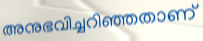
അനുഭവിച്ചറിഞ്ഞതാണ്